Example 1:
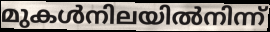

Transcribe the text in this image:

മുകൾനിലയിൽനിന്ന്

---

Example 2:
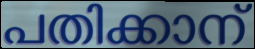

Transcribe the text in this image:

പതിക്കാന്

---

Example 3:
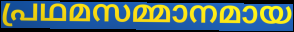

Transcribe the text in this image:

പ്രഥമസമ്മാനമായ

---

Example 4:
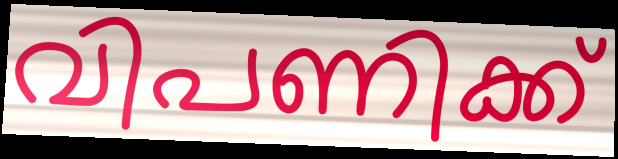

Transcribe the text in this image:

വിപണിക്ക്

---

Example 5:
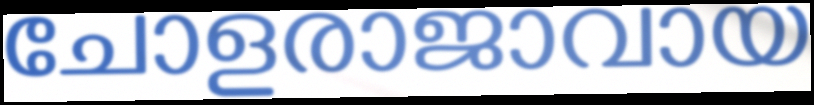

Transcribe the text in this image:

ചോളരാജാവായ